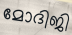
മോദിജി